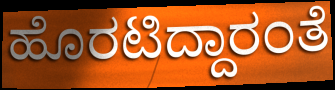
ಹೊರಟಿದ್ದಾರಂತೆ